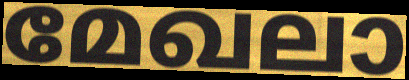
മേഖലാ